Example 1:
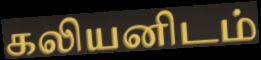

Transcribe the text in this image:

கலியனிடம்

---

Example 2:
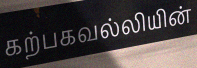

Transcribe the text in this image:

கற்பகவல்லியின்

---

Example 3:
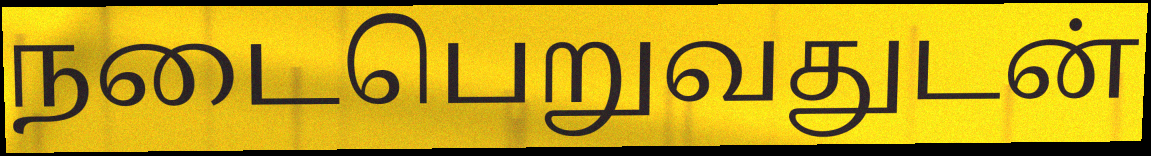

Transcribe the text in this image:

நடைபெறுவதுடன்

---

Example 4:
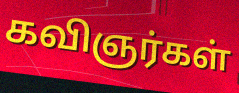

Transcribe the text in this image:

கவிஞர்கள்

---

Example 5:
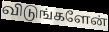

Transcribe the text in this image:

விடுங்களேன்